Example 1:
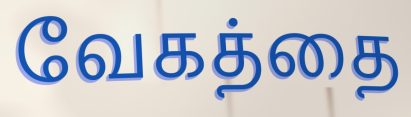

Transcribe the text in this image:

வேகத்தை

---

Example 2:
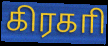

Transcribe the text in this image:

கிரகரி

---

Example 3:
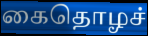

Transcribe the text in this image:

கைதொழச்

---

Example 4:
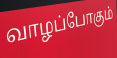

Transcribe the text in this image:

வாழப்போகும்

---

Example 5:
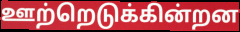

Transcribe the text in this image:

ஊற்றெடுக்கின்றன